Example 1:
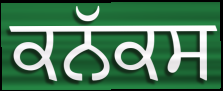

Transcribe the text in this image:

ਕਨੱਕਸ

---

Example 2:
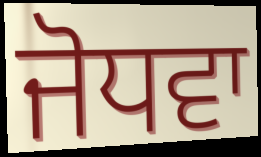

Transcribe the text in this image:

ਜੋਧਵਾ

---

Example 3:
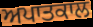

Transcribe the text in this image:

ਅਪਾਤਕਾਲ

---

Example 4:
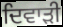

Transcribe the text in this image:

ਦਿਵਾੜੀ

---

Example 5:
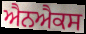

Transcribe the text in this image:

ਐਨਐਕਸ